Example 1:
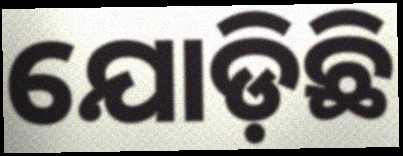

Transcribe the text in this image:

ଯୋଡ଼ିଛି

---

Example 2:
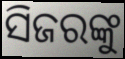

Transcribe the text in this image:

ସିଜରଙ୍କୁ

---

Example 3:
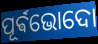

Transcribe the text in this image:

ପୂର୍ଵଭୋଦୋ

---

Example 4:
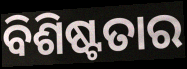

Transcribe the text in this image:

ବିଶିଷ୍ଟତାର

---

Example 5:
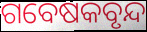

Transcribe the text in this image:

ଗବେଷକବୃନ୍ଦ